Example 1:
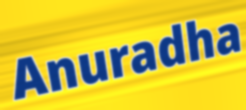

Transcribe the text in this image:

Anuradha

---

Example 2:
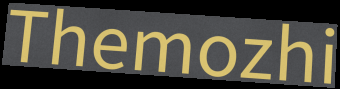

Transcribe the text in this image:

Themozhi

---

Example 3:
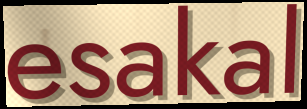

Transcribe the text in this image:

esakal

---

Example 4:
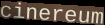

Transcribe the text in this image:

cinereum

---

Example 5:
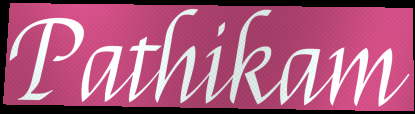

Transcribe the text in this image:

Pathikam